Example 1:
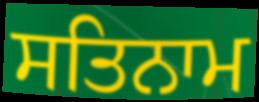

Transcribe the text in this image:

ਸਤਿਨਾਮ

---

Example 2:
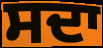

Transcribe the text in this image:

ਸਦਾ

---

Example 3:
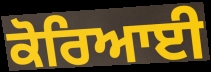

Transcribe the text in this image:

ਕੋਰਿਆਈ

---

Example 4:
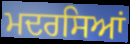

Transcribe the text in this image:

ਮਦਰਸਿਆਂ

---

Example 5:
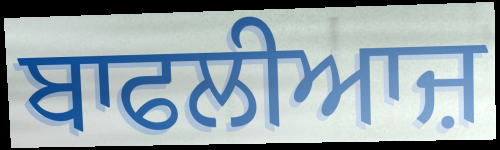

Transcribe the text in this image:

ਬਾਫਲੀਆਜ਼